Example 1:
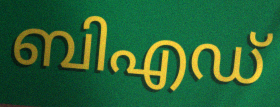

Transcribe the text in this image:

ബിഎഡ്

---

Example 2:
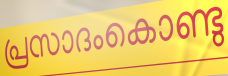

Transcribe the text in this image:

പ്രസാദംകൊണ്ടു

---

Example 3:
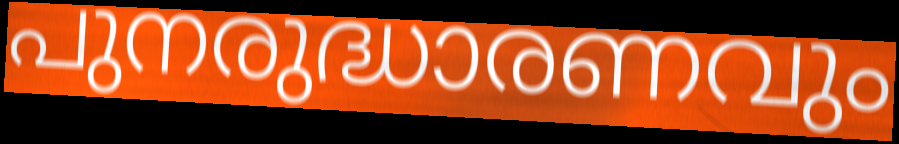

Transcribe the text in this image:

പുനരുദ്ധാരണവും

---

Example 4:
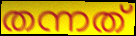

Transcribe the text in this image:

തന്നത്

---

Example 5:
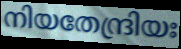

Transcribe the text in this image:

നിയതേന്ദ്രിയഃ